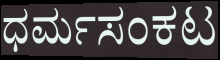
ಧರ್ಮಸಂಕಟ